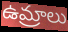
ఉమ్రాలు